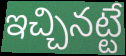
ఇచ్చినట్టే